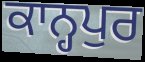
ਕਾਨ੍ਹਪੁਰ